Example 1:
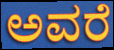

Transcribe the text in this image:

ಅವರೆ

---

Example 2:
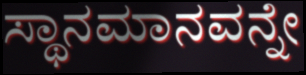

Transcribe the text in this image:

ಸ್ಥಾನಮಾನವನ್ನೇ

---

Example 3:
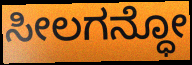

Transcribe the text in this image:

ಸೀಲಗನ್ಧೋ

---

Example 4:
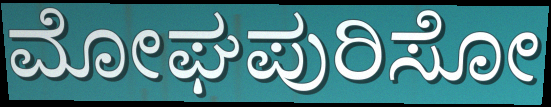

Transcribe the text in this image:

ಮೋಘಪುರಿಸೋ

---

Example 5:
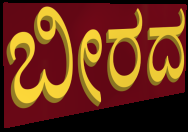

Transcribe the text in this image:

ಬೀರದ